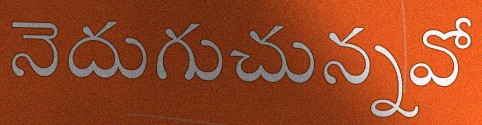
నెదుగుచున్నవో